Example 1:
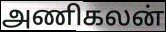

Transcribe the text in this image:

அணிகலன்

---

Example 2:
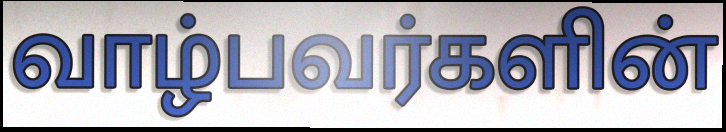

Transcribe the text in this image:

வாழ்பவர்களின்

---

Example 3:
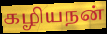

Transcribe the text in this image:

கழியநன்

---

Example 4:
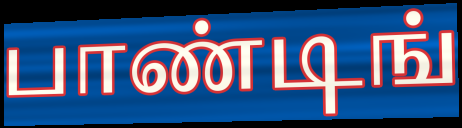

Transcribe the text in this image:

பாண்டிங்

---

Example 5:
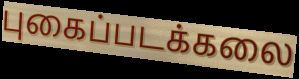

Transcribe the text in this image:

புகைப்படக்கலை